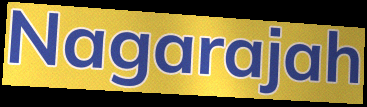
Nagarajah